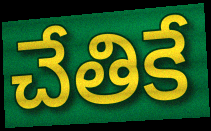
చేతికే